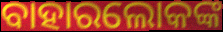
ବାହାରଲୋକଙ୍କ